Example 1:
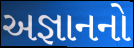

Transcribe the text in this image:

અજ્ઞાનનો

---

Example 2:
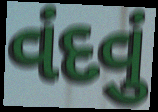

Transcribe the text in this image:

વંદવું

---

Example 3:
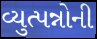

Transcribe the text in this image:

વ્યુત્પન્નોની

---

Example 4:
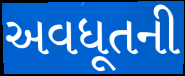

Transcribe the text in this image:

અવધૂતની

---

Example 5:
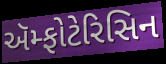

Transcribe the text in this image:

ઍમ્ફોટેરિસિન